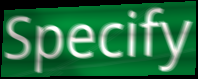
Specify